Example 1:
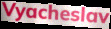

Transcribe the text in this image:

Vyacheslav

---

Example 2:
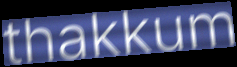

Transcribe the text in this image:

thakkum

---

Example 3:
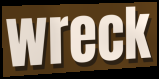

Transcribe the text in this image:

wreck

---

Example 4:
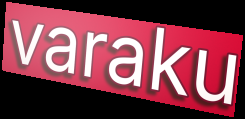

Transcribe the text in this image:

varaku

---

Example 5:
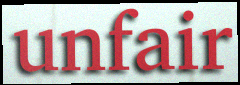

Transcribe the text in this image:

unfair